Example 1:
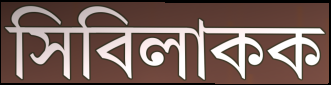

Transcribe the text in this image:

সিবিলাকক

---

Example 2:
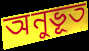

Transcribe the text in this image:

অনুভূত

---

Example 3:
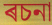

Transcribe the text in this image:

ৰচনা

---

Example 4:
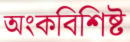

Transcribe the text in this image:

অংকবিশিষ্ট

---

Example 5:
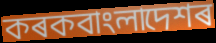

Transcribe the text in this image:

কৰকবাংলাদেশৰ